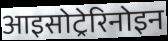
आइसोट्रेरिनोइन